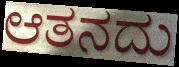
ಆತನದು